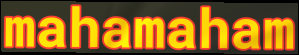
mahamaham